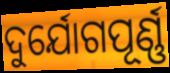
ଦୁର୍ଯୋଗପୂର୍ଣ୍ଣ